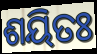
ଶୟିତଃ